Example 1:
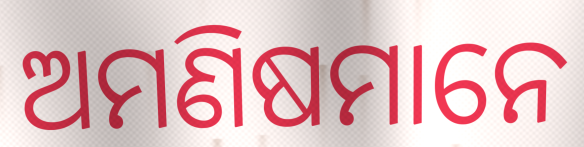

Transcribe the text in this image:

ଅମଣିଷମାନେ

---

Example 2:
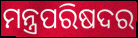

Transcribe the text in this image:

ମନ୍ତ୍ରପରିଷଦର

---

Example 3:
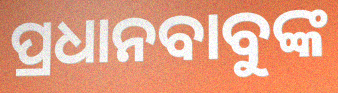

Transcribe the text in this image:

ପ୍ରଧାନବାବୁଙ୍କ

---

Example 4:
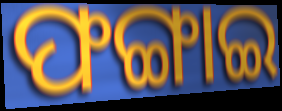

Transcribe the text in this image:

ଫଙ୍ଗାଇ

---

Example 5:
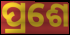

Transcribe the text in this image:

ପ୍ରଶେ